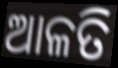
ଆଳତି